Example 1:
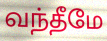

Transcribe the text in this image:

வந்தீமே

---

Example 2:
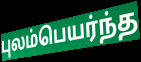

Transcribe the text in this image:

புலம்பெயர்ந்த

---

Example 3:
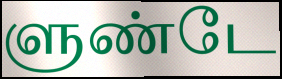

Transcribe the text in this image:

ளுண்டே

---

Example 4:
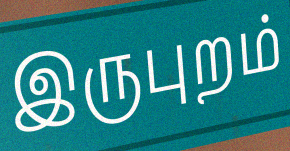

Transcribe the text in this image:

இருபுறம்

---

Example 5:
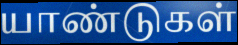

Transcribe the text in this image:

யாண்டுகள்